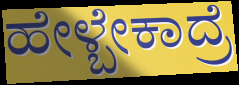
ಹೇಳ್ಬೇಕಾದ್ರೆ